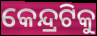
କେନ୍ଦ୍ରଟିକୁ